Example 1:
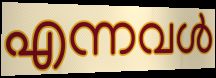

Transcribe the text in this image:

എന്നവൾ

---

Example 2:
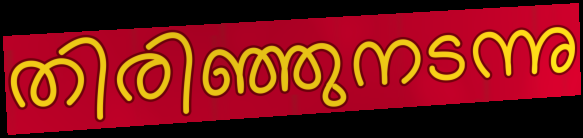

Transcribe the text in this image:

തിരിഞ്ഞുനടന്നു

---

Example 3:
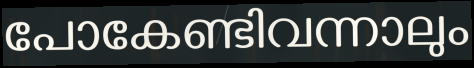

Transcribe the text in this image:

പോകേണ്ടിവന്നാലും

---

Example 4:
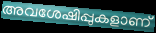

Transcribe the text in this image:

അവശേഷിപ്പുകളാണ്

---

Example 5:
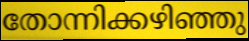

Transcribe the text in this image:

തോന്നിക്കഴിഞ്ഞു